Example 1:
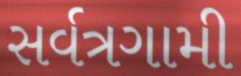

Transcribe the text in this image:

સર્વત્રગામી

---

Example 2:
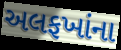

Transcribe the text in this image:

અલફખાંના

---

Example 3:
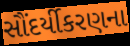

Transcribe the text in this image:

સૌંદર્યીકરણના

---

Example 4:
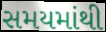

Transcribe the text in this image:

સમયમાંથી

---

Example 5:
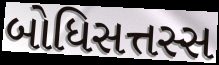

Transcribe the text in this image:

બોધિસત્તસ્સ